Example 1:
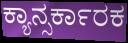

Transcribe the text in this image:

ಕ್ಯಾನ್ಸರ್ಕಾರಕ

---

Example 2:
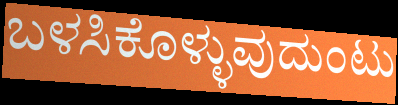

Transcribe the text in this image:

ಬಳಸಿಕೊಳ್ಳುವುದುಂಟು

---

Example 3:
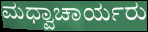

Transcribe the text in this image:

ಮಧ್ವಾಚಾರ್ಯರು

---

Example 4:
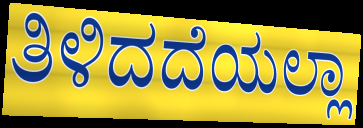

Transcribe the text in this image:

ತಿಳಿದದೆಯಲ್ಲಾ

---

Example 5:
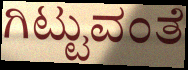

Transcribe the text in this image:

ಗಿಟ್ಟುವಂತೆ